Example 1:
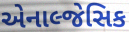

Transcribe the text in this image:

એનાલ્જેસિક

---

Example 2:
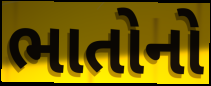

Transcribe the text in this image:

ભાતોનો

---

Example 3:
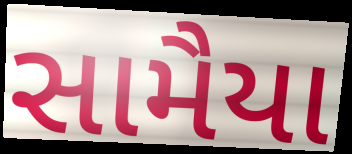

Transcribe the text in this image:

સામૈયા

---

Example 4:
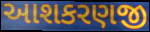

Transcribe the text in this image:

આશકરણજી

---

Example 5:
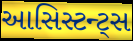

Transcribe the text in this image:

આસિસ્ટન્ટ્સ